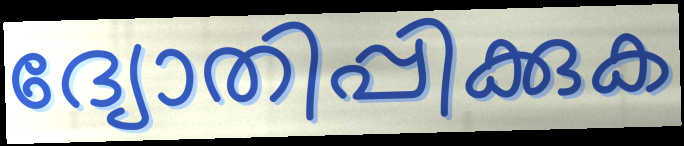
ദ്യോതിപ്പിക്കുക